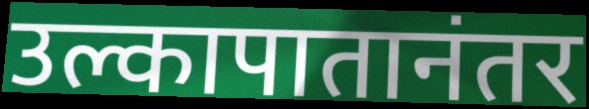
उल्कापातानंतर